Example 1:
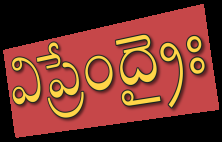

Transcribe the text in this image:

విప్రేంద్రైః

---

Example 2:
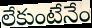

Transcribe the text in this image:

లేకుంటేనేం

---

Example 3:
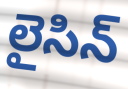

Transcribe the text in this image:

లైసిన్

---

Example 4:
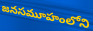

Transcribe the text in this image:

జనసమూహంలోని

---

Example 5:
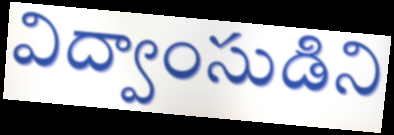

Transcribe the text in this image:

విద్వాంసుడిని